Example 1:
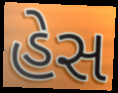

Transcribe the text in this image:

હેસ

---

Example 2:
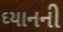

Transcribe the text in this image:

ઘ્યાનની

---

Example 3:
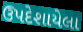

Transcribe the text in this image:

ઉપદેશાયેલા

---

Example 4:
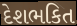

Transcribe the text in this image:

દેશભકિત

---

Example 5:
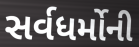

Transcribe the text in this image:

સર્વધર્મોની